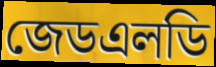
জেডএলডি